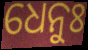
ଧେନୁଃ